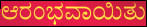
ಆರಂಭವಾಯಿತು